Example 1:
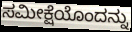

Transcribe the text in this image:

ಸಮೀಕ್ಷೆಯೊಂದನ್ನು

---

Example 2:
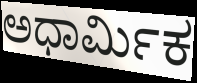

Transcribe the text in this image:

ಅಧಾರ್ಮಿಕ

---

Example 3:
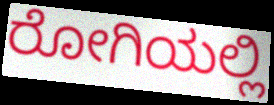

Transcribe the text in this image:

ರೋಗಿಯಲ್ಲಿ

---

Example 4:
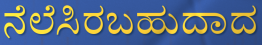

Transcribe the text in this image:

ನೆಲೆಸಿರಬಹುದಾದ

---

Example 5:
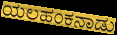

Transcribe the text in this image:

ಯಲಹಂಕನಾಡು